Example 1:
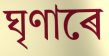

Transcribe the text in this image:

ঘৃণাৰে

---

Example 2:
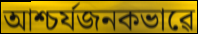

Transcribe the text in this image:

আশ্চৰ্যজনকভাৱে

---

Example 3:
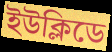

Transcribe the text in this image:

ইউক্লিডে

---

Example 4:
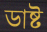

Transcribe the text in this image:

ডাষ্ট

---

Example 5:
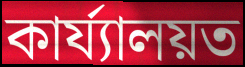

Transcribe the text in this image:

কাৰ্য্যালয়ত